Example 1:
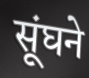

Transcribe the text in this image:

सूंघने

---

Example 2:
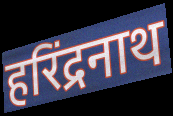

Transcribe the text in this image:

हरिंद्रनाथ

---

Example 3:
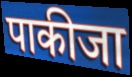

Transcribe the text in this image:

पाकीजा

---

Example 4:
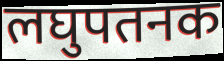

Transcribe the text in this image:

लघुपतनक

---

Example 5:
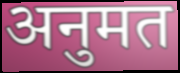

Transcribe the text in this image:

अनुमत